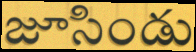
జూసిండు